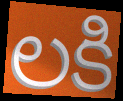
లకి